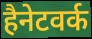
हैनेटवर्क